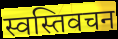
स्वस्तिवचन